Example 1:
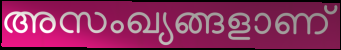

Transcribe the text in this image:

അസംഖ്യങ്ങളാണ്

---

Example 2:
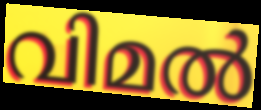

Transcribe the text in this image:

വിമൽ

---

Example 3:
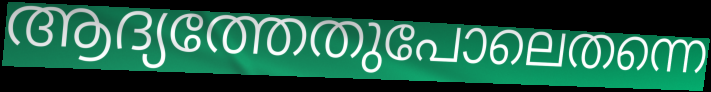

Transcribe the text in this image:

ആദ്യത്തേതുപോലെതന്നെ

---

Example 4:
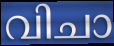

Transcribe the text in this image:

വിചാ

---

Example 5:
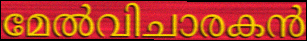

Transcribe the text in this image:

മേൽവിചാരകൻ